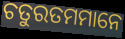
ଚତୁରତମମାନେ